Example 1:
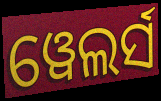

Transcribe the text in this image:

ୱେଲର୍ସ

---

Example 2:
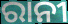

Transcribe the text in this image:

ରାନୀ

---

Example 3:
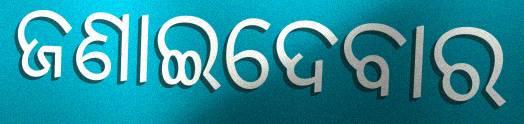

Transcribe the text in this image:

ଜଣାଇଦେବାର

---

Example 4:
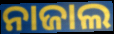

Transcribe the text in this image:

ନାଜାଲ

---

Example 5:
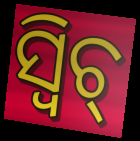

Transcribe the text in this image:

ସ୍ଵିଚ୍